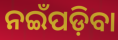
ନଇଁପଡ଼ିବା